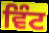
ਵਿੰਟ